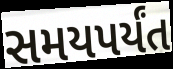
સમયપર્યંત